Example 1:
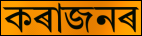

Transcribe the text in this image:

কৰাজনৰ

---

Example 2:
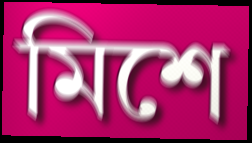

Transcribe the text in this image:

মিশে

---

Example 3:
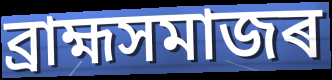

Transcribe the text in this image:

ব্ৰাহ্মসমাজৰ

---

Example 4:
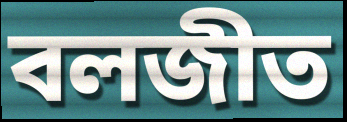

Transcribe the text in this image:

বলজীত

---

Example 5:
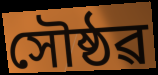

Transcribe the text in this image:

সৌষ্ঠৱ